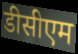
डीसीएम